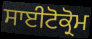
ਸਾਈਟੋਕ੍ਰੋਮ